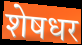
शेषधर